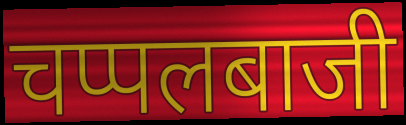
चप्पलबाजी